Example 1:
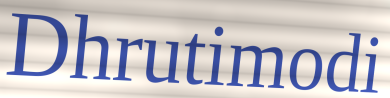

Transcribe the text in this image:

Dhrutimodi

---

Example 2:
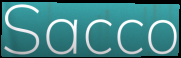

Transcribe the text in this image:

Sacco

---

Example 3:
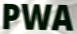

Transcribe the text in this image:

PWA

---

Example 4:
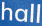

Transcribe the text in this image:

hall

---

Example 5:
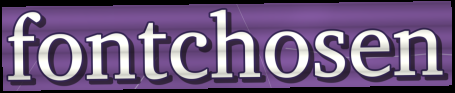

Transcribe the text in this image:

fontchosen